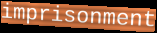
imprisonment